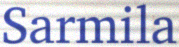
Sarmila